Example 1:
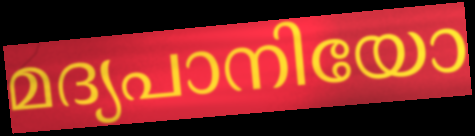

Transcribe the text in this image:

മദ്യപാനിയോ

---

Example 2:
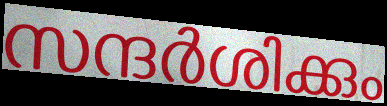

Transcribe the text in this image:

സന്ദർശിക്കും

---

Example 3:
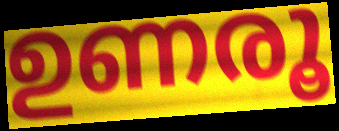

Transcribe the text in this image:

ഉണരൂ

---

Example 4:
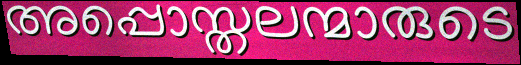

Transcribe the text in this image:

അപ്പൊസ്തലന്മാരുടെ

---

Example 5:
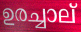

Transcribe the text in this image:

ഉരച്ചാല്